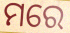
ମରେ